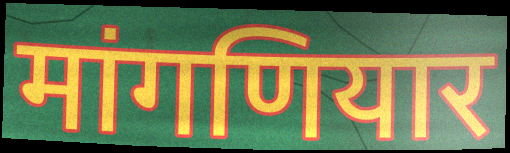
मांगणियार